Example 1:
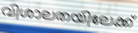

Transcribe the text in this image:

വിശാലതയിലേക്ക്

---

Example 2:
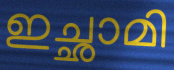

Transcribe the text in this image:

ഇച്ഛാമി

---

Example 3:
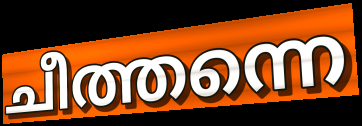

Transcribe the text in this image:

ചീത്തന്നെ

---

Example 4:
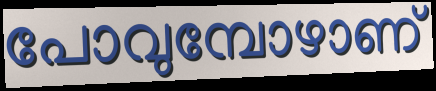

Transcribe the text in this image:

പോവുമ്പോഴാണ്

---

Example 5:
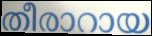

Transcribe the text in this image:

തീരാറായ